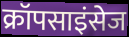
क्रॉपसाइंसेज